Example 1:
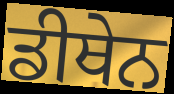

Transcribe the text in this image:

ਡੀਥੇਨ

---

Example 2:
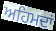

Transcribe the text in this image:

ਅਹਿਮਦਾਂ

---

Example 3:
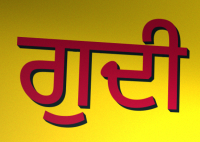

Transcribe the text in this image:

ਗੁਦੀ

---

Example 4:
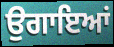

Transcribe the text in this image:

ਉਗਾਇਆਂ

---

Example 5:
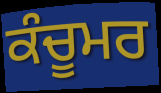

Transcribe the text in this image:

ਕੰਚੂਮਰ